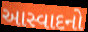
આસ્વાદનો